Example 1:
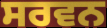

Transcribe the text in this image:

ਸਰਵਨ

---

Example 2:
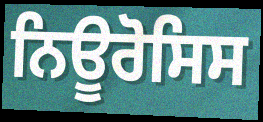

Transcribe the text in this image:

ਨਿਊਰੋਸਿਸ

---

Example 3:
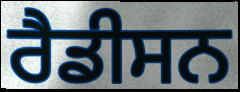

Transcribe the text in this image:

ਰੈਡੀਸਨ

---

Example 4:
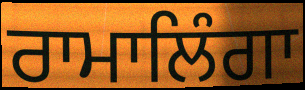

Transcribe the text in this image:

ਰਾਮਾਲਿੰਗਾ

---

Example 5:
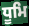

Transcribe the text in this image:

ਧੂਮਿ